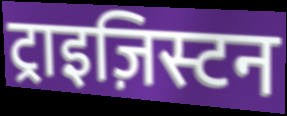
ट्राइज़िस्टन